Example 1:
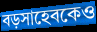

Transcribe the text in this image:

বড়সাহেবকেও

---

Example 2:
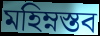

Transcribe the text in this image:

মহিম্নস্তব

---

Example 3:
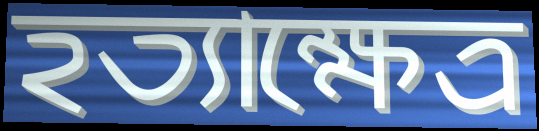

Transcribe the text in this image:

হত্যাক্ষেত্র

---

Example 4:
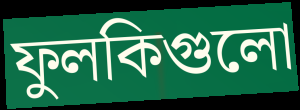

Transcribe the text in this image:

ফুলকিগুলো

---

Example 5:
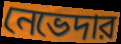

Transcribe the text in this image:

নেভেদার